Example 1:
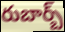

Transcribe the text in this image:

రుబార్బ్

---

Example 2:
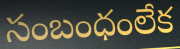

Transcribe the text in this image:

సంబంధంలేక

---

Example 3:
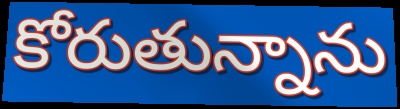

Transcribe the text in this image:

కోరుతున్నాను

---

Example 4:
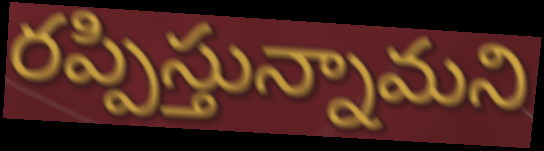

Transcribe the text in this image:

రప్పిస్తున్నామని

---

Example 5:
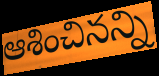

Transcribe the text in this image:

ఆశించినన్ని